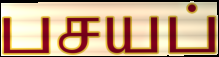
பசயப்